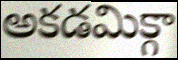
అకడమిక్గా